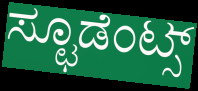
ಸ್ಟೂಡೆಂಟ್ಸ್